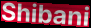
Shibani